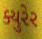
ક્યુરેર